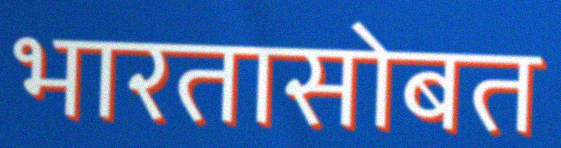
भारतासोबत